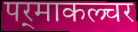
पर्माकल्चर